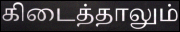
கிடைத்தாலும்